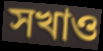
সখাও